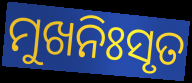
ମୁଖନିଃସୃତ